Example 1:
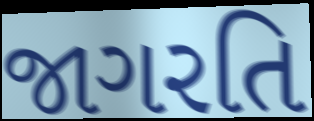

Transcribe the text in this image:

જાગરતિ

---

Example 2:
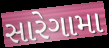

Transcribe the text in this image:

સારેગામા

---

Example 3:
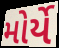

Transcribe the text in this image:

મોર્યે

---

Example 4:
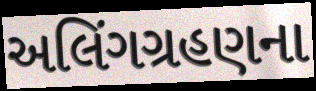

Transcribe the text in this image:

અલિંગગ્રહણના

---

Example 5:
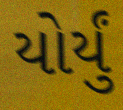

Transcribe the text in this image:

યોર્યું